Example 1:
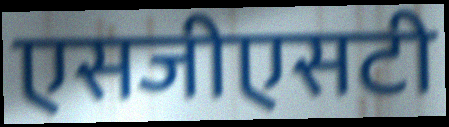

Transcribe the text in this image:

एसजीएसटी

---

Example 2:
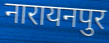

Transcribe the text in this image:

नारायनपुर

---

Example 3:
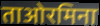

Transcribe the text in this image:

ताओरमिना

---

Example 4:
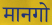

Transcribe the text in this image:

मानगो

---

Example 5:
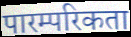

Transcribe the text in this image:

पारम्परिकता